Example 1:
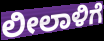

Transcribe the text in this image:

ಲೀಲಾಳಿಗೆ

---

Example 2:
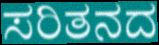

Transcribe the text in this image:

ಸರಿತನದ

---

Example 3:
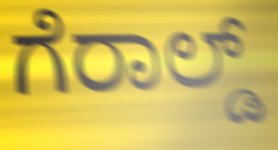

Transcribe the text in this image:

ಗೆರಾಲ್ಡ್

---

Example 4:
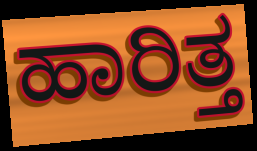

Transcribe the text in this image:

ಹಾರಿತ್ತ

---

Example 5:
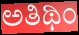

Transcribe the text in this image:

ಅತಿಥಿಂ